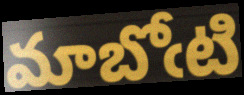
మాబోఁటి